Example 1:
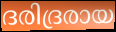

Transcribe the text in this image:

ദരിദ്രരായ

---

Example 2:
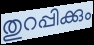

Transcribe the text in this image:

തുറപ്പിക്കും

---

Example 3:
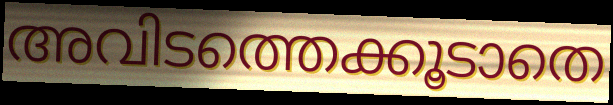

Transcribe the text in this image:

അവിടത്തെക്കൂടാതെ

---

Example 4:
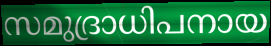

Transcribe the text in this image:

സമുദ്രാധിപനായ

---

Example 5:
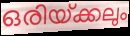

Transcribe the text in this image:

ഒരിയ്‌ക്കലും